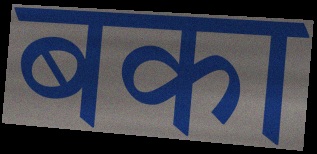
बका